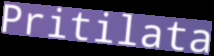
Pritilata